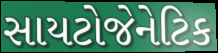
સાયટોજેનેટિક